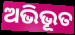
ଅଭିଭୂତ